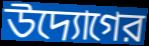
উদ্যোগের